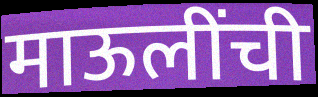
माऊलींची